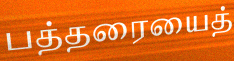
பத்தரையைத்